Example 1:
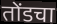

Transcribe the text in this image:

तोंडचा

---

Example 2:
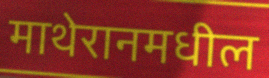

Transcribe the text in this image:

माथेरानमधील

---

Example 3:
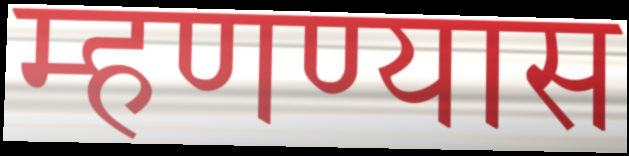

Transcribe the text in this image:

म्हणण्यास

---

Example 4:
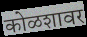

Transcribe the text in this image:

कोळशावर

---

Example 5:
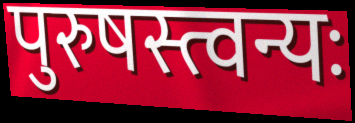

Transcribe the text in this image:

पुरुषस्त्वन्यः